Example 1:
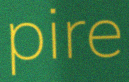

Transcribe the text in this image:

pire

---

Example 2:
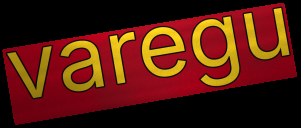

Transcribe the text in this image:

varegu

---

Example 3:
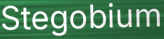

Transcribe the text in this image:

Stegobium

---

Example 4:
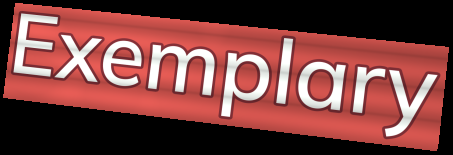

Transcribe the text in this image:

Exemplary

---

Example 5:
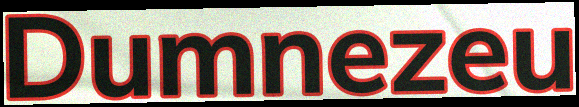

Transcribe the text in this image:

Dumnezeu